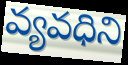
వ్యవధిని